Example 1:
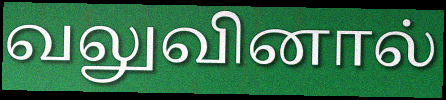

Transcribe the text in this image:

வலுவினால்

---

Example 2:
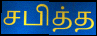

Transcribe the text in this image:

சபித்த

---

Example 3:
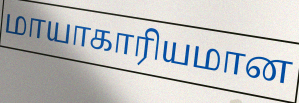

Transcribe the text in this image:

மாயாகாரியமான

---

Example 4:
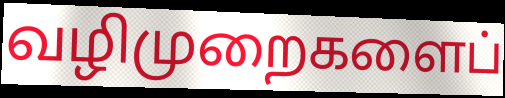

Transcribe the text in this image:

வழிமுறைகளைப்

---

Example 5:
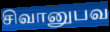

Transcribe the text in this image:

சிவானுபவ